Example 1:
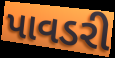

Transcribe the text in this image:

પાવડરી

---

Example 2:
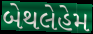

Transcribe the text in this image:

બેથલેહેમ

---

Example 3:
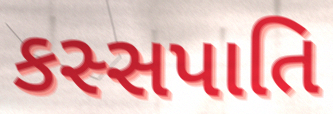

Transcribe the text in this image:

કસ્સપાતિ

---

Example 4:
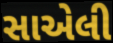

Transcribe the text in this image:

સાએલી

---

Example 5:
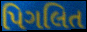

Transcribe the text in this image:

પિગલિત